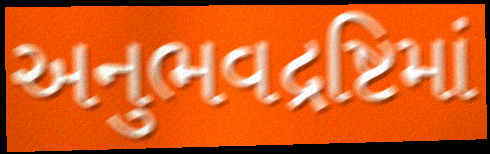
અનુભવદ્રષ્ટિમાં